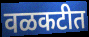
वळकटीत